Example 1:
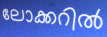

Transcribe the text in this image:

ലോക്കറിൽ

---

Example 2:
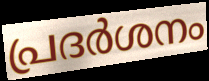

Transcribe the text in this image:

പ്രദർശനം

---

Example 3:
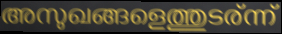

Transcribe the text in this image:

അസുഖങ്ങളെത്തുടര്ന്ന്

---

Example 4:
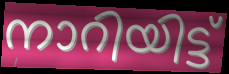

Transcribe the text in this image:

നാറിയിട്ട്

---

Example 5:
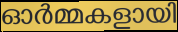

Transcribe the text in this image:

ഓർമ്മകളായി